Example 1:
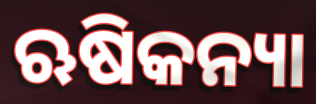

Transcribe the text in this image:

ଋଷିକନ୍ୟା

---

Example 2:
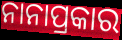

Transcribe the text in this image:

ନାନାପ୍ରକାର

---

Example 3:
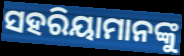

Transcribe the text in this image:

ସହରିୟାମାନଙ୍କୁ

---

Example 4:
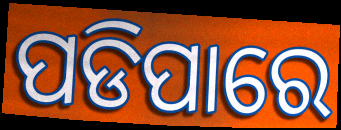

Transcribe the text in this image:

ପଡିପାରେ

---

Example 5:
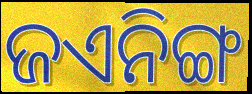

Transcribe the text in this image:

ଜଏନିଙ୍ଗ